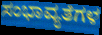
ಸಂಭಾವ್ಯತೆಗಳ